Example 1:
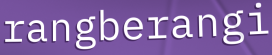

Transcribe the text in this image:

rangberangi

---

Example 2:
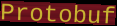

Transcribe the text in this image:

Protobuf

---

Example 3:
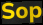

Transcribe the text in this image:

Sop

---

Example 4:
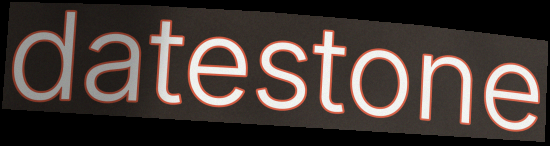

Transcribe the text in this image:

datestone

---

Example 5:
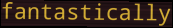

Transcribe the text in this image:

fantastically